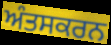
ਅੰਤਸਕਰਨ